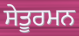
ਸੇਤੂਰਮਨ